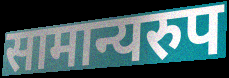
सामान्यरुप